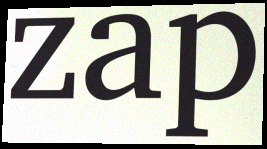
zap